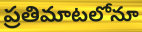
ప్రతిమాటలోనూ